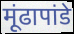
मूंढापांडे